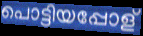
പൊട്ടിയപ്പോള്